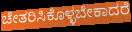
ಚೇತರಿಸಿಕೊಳ್ಳಬೇಕಾದರೆ